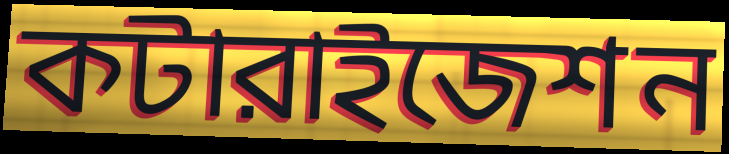
কটারাইজেশন